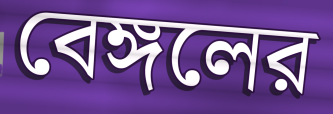
বেঙ্গলের